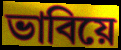
ভাবিয়ে